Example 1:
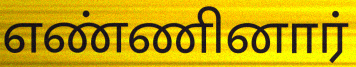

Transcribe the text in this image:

எண்ணினார்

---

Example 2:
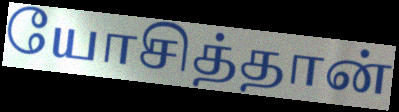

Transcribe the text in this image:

யோசித்தான்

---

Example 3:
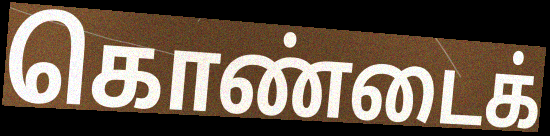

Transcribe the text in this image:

கொண்டைக்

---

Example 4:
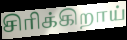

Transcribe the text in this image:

சிரிக்கிறாய்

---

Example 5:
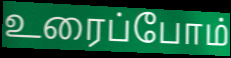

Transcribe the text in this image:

உரைப்போம்